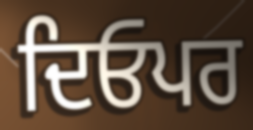
ਦਿਓਪਰ